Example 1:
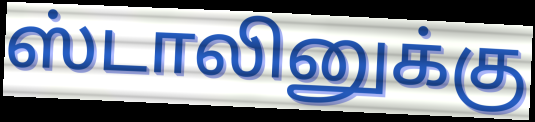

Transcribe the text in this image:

ஸ்டாலினுக்கு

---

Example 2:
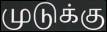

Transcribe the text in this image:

முடுக்கு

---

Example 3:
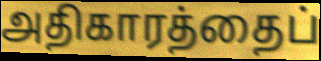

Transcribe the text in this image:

அதிகாரத்தைப்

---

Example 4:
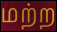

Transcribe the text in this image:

மற்ற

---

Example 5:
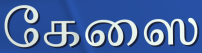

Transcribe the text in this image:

கேஸை